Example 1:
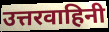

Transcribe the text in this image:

उत्तरवाहिनी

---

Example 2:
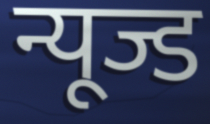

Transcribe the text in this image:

न्यूज्ड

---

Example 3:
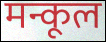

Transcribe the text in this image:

मन्कूल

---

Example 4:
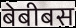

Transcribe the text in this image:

बेबीबस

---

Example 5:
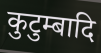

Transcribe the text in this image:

कुटुम्बादि